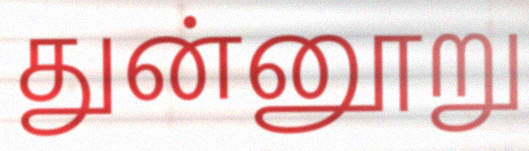
துன்னூறு